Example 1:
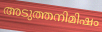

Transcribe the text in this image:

അടുത്തനിമിഷം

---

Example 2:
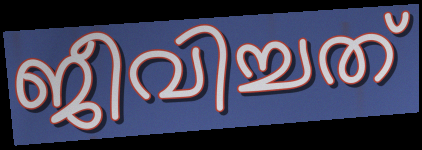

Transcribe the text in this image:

ജീവിച്ചത്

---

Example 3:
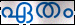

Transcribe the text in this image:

ഏതം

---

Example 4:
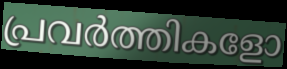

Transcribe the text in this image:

പ്രവർത്തികളോ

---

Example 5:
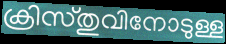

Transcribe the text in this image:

ക്രിസ്തുവിനോടുള്ള